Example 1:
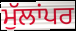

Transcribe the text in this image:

ਮੁੱਲਾਂਪਰ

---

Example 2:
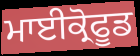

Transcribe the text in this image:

ਮਾਈਕ੍ਰੋਫੂਡ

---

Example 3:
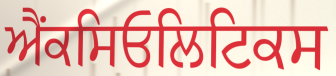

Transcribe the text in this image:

ਐਂਕਸਿਓਲਿਟਿਕਸ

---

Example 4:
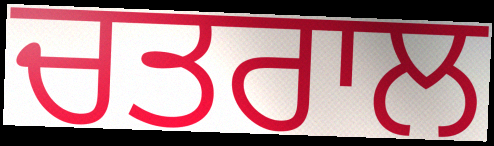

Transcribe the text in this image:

ਚਤਰਾਲ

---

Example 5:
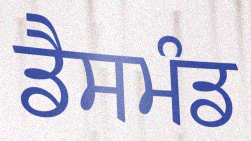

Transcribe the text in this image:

ਡੈਸਮੰਡ